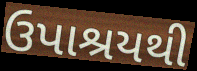
ઉપાશ્રયથી